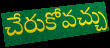
చేరుకోవచ్చు